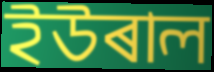
ইউৰাল